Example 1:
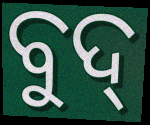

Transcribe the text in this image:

ବୁଦ୍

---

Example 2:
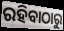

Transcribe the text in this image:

ରହିବାଠାରୁ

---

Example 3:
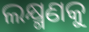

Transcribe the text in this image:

ଲକ୍ଷ୍ମଣକୁ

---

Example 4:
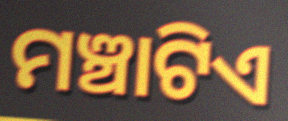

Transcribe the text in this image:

ମଞ୍ଚାଟିଏ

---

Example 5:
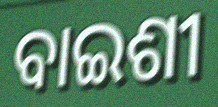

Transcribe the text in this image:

ବାଇଶୀ